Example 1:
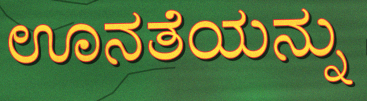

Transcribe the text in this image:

ಊನತೆಯನ್ನು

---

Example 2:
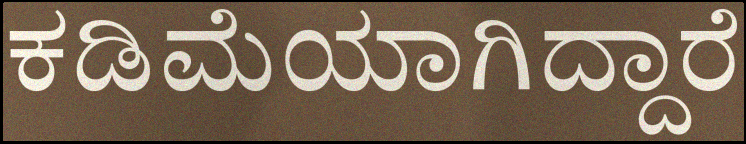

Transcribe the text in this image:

ಕಡಿಮೆಯಾಗಿದ್ದಾರೆ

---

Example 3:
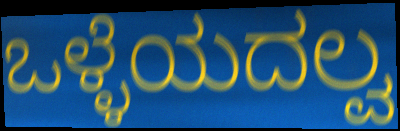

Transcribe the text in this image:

ಒಳ್ಳೆಯದಲ್ವ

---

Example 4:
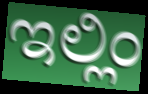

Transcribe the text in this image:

ಇಲ್ಲಿಂ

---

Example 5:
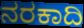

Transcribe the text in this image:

ನರಕಾದಿ